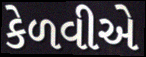
કેળવીએ